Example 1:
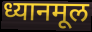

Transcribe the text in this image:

ध्यानमूल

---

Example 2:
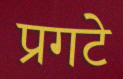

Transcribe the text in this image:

प्रगटे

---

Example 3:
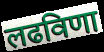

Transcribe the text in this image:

लढविणा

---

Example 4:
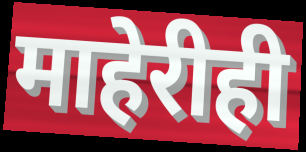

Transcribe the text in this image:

माहेरीही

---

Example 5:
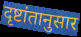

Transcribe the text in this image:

दृष्टांतानुसार